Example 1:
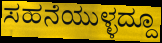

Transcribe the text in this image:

ಸಹನೆಯುಳ್ಳದ್ದೂ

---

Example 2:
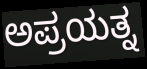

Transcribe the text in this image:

ಅಪ್ರಯತ್ನ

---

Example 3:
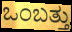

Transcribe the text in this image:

ಒಂಬತ್ತು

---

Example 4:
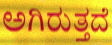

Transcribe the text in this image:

ಅಗಿರುತ್ತದೆ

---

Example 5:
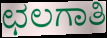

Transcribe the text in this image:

ಛಲಗಾತಿ